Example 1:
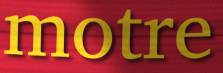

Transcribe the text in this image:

motre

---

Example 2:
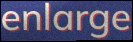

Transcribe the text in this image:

enlarge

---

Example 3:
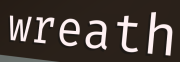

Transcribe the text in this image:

wreath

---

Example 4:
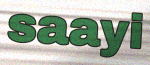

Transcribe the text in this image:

saayi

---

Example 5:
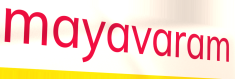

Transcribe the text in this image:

mayavaram